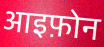
आइफ़ोन